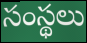
సంస్థలు